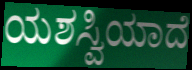
ಯಶಸ್ವಿಯಾದೆ